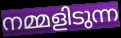
നമ്മളിടുന്ന